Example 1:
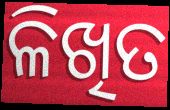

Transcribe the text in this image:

ଳିଖିତ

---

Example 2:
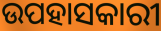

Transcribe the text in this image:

ଉପହାସକାରୀ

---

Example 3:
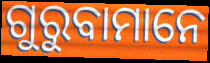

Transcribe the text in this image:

ଗୁରୁବାମାନେ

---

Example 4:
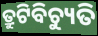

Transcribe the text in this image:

ତ୍ରୁଟିବିଚ୍ୟୁତି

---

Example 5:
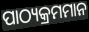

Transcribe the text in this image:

ପାଠ୍ୟକ୍ରମମାନ